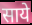
साये